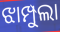
ଝାମ୍ପୁଲା